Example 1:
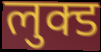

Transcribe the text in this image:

लुक्ड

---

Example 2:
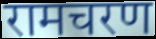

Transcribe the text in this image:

रामचरण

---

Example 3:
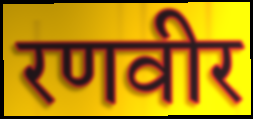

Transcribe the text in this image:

रणवीर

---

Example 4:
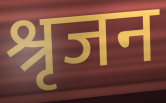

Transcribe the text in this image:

श्रृजन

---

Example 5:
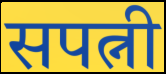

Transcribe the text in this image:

सपत्नी